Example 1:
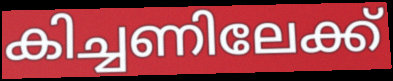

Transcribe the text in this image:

കിച്ചണിലേക്ക്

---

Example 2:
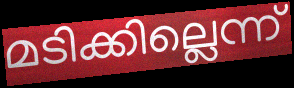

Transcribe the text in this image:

മടിക്കില്ലെന്ന്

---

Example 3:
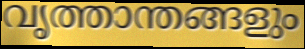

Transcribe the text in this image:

വൃത്താന്തങ്ങളും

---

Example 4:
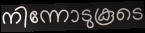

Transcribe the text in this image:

നിന്നോടുകൂടെ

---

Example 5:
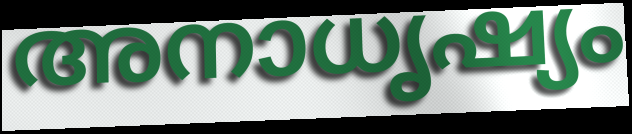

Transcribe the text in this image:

അനാധൃഷ്യം